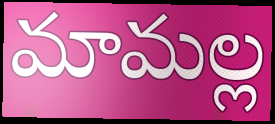
మామల్ల